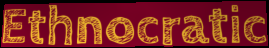
Ethnocratic